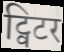
ट्विटर